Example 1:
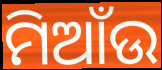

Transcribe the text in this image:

ମିଆଁଉ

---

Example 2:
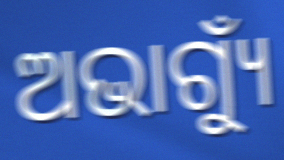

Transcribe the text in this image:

ଅଭାଗ୍ୟୁଁ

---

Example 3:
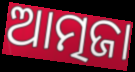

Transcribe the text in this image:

ଆତ୍ମଜା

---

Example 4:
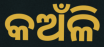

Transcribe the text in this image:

କଅଁଳି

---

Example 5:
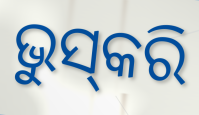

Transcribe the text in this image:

ଭୁସ୍‌କରି